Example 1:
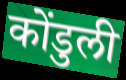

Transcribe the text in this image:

कोंडुली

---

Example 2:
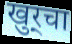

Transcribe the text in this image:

खुर्चा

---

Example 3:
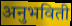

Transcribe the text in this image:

अनुभविती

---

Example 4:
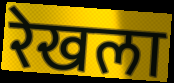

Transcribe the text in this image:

रेखला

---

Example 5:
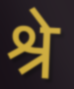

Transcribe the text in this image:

श्रे